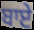
ਬਾਏ